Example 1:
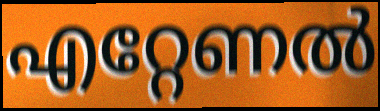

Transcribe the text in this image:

എറ്റേണൽ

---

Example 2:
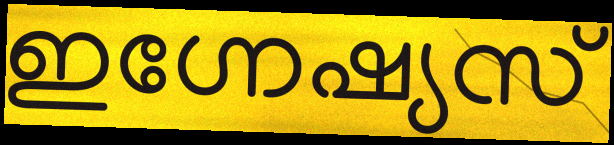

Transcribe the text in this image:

ഇഗ്നേഷ്യസ്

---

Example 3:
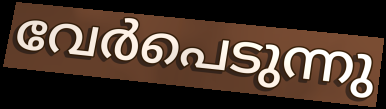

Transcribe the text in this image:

വേർപെടുന്നു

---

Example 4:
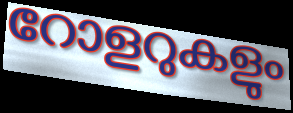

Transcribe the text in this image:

റോളറുകളും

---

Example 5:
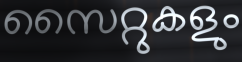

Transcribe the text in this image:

സൈറ്റുകളും